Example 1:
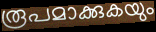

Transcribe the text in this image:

രൂപമാക്കുകയും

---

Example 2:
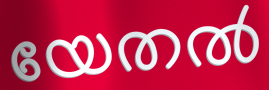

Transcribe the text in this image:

യേതൽ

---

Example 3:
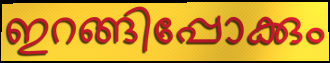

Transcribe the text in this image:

ഇറങ്ങിപ്പോക്കും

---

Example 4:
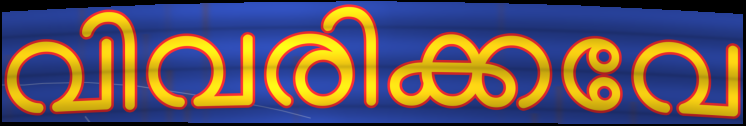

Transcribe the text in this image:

വിവരിക്കവേ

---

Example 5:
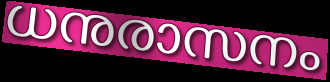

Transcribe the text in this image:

ധനുരാസനം